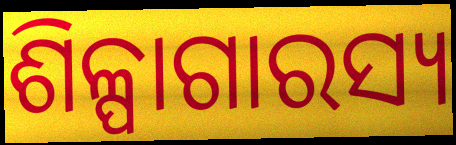
ଶିଳ୍ପାଗାରସ୍ୟ